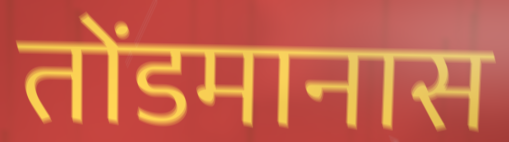
तोंडमानास